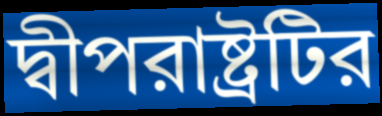
দ্বীপরাষ্ট্রটির